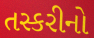
તસ્કરીનો